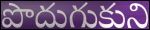
పొదుగుకుని